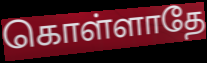
கொள்ளாதே